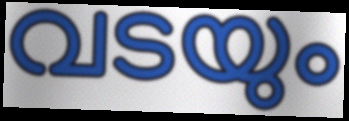
വടയും